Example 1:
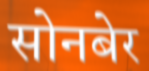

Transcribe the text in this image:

सोनबेर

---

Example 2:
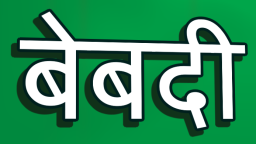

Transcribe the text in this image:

बेबदी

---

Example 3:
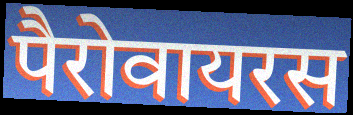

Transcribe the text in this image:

पैरोवायरस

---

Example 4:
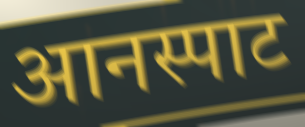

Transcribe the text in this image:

आनस्पाट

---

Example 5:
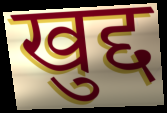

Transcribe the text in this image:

खुद्द